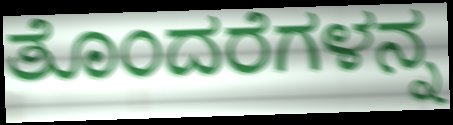
ತೊಂದರೆಗಳನ್ನ